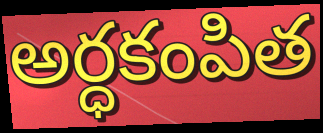
అర్ధకంపిత